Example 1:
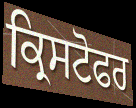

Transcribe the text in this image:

ਕ੍ਰਿਸਟੋਫਰ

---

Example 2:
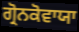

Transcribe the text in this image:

ਗ੍ਰੋਨਕੋਵਾਯਾ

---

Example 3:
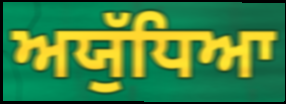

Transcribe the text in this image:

ਅਯੁੱਧਿਆ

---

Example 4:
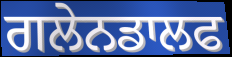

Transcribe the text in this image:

ਗਲੇਨਡਾਲਫ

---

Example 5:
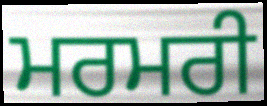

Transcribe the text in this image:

ਮਰਮਰੀ